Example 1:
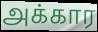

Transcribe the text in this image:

அக்கார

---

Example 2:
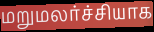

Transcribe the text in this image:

மறுமலர்ச்சியாக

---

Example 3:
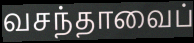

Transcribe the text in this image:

வசந்தாவைப்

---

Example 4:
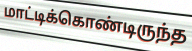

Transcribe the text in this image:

மாட்டிக்கொண்டிருந்த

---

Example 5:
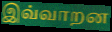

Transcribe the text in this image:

இவ்வாறன